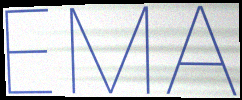
EMA